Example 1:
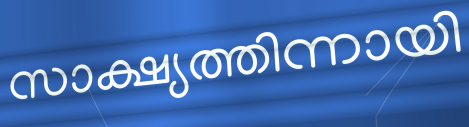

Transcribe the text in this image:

സാക്ഷ്യത്തിന്നായി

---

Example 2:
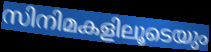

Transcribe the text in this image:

സിനിമകളിലൂടെയും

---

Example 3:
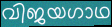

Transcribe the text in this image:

വിജയഗാഥ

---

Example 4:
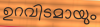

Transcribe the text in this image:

ഉറവിടമായും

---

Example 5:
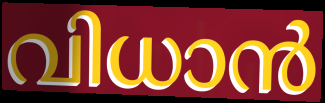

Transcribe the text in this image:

വിധാൻ